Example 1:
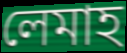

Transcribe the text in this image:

লেমাহ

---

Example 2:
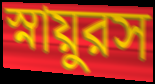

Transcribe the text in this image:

স্নায়ুরস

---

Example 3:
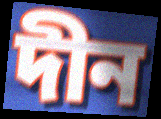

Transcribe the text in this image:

দীন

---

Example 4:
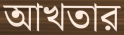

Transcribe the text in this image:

আখতার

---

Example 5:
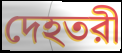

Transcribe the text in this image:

দেহতরী